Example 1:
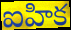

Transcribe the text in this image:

ఐహిక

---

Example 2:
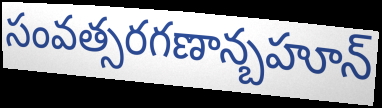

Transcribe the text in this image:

సంవత్సరగణాన్బహూన్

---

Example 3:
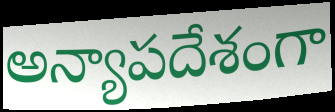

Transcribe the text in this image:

అన్యాపదేశంగా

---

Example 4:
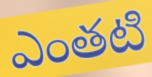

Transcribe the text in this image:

ఎంతటి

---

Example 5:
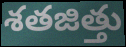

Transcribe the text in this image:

శతజిత్తు